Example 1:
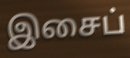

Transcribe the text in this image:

இசைப்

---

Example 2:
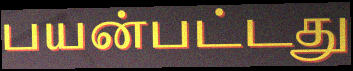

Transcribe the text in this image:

பயன்பட்டது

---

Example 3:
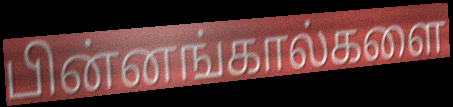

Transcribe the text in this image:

பின்னங்கால்களை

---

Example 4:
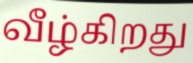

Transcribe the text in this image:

வீழ்கிறது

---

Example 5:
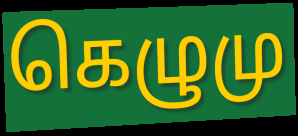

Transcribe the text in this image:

கெழுமு